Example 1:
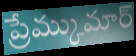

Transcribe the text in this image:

ప్రేమ్కుమార్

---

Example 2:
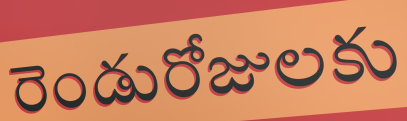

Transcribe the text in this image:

రెండురోజులకు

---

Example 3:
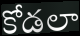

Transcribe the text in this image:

కోడలా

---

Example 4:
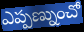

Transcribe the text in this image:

ఎప్పణ్నుంచో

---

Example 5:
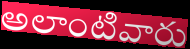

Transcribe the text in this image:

అలాంటివారు